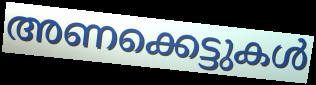
അണക്കെട്ടുകൾ